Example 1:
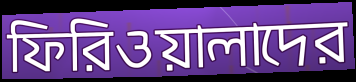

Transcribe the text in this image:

ফিরিওয়ালাদের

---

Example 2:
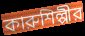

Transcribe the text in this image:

কারুশিল্পীর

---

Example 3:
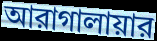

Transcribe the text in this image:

আরাগালায়ার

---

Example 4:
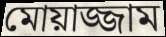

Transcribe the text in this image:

মোয়াজ্জাম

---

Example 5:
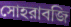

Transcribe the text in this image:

সোহরাবজি